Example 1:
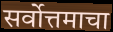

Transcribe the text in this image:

सर्वोत्तमाचा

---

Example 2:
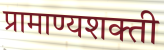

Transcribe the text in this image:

प्रामाण्यशक्ती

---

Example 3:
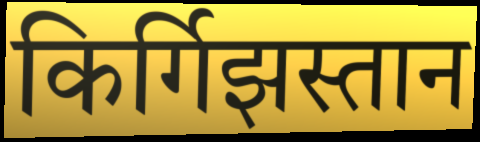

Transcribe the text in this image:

किर्गिझस्तान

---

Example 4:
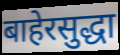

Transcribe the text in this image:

बाहेरसुद्धा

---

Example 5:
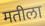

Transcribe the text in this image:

मतीला